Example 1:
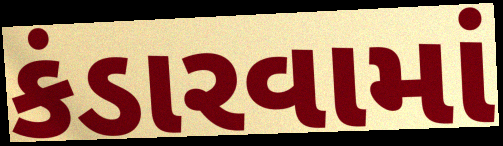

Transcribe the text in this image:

કંડારવામાં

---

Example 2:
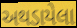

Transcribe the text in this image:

અથડાયેલા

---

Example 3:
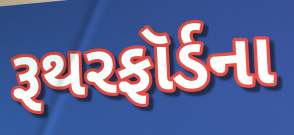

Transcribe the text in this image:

રૂથરફૉર્ડના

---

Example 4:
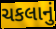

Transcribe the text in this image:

ચકલાનું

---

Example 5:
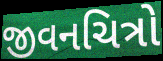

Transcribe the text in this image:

જીવનચિત્રો